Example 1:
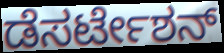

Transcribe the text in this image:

ಡೆಸರ್ಟೇಶನ್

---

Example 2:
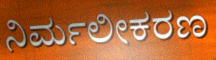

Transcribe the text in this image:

ನಿರ್ಮಲೀಕರಣ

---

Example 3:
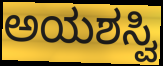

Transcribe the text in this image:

ಅಯಶಸ್ವಿ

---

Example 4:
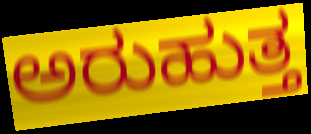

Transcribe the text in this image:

ಅರುಹುತ್ತ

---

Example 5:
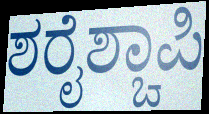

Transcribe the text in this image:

ಶರೈಶ್ಚಾಪಿ